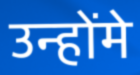
उन्होंमे